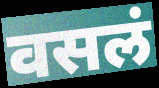
वसलं